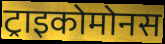
ट्राइकोमोनस